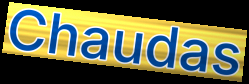
Chaudas